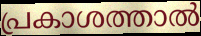
പ്രകാശത്താൽ